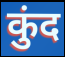
कुंद